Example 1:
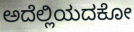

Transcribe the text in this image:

ಅದೆಲ್ಲಿಯದಕೋ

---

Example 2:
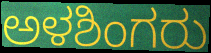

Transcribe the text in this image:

ಅಳಶಿಂಗರು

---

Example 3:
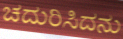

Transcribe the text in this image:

ಚದುರಿಸಿದನು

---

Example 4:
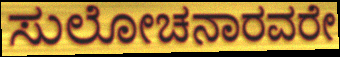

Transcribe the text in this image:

ಸುಲೋಚನಾರವರೇ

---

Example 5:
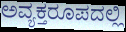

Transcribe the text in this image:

ಅವ್ಯಕ್ತರೂಪದಲ್ಲಿ